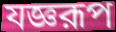
যজ্ঞরূপ